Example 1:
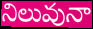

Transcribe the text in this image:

నిలువునా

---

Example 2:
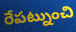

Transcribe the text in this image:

రేపట్నుంచి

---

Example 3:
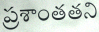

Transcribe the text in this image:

ప్రశాంతతని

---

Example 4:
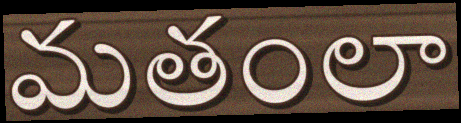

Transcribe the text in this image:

మతంలా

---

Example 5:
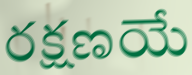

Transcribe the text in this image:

రక్షణయే